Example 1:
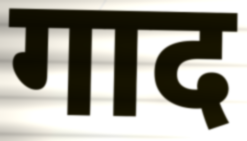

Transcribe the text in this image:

गाद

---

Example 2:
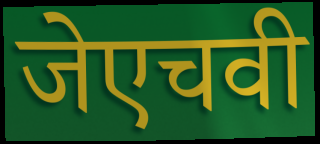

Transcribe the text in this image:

जेएचवी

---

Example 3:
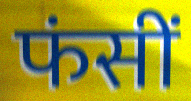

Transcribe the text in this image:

फंसीं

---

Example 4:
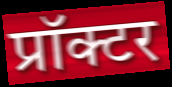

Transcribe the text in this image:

प्रॉक्टर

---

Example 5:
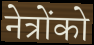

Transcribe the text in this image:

नेत्रोंको